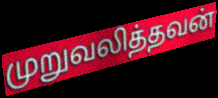
முறுவலித்தவன்